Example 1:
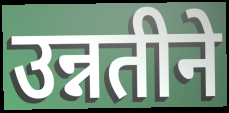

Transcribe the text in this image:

उन्नतीने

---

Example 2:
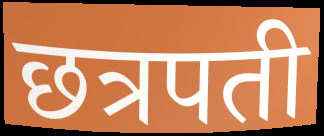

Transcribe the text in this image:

छत्रपती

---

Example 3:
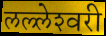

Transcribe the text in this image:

लल्लेश्वरी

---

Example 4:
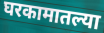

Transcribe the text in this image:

घरकामातल्या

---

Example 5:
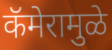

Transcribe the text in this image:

कॅमेरामुळे